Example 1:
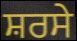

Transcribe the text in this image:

ਸ਼ਰਸੇ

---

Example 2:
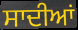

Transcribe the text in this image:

ਸਾਦੀਆਂ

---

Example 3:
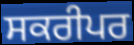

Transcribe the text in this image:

ਸਕਰੀਪਰ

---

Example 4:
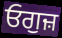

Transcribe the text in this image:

ਓਗੁਜ਼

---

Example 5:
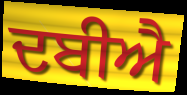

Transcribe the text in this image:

ਦਬੀਐ